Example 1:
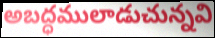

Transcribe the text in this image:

అబద్ధములాడుచున్నవి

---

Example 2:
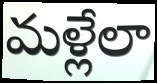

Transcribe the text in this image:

మళ్లేలా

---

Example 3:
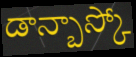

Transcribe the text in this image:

డాన్బాస్కో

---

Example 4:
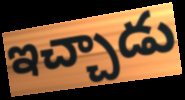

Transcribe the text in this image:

ఇచ్చాడు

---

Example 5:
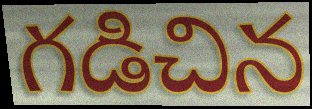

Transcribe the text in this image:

గడిచిన